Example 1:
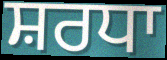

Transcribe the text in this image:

ਸ਼ਰਧਾ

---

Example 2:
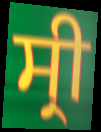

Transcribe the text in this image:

ਸ੍ਰੀ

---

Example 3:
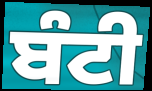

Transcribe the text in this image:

ਬੰਟੀ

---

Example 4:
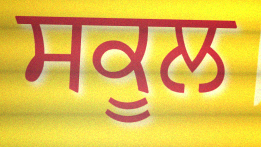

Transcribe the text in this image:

ਸਕੂਲ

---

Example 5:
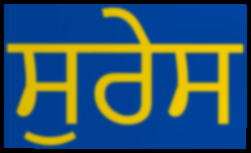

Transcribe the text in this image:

ਸੁਰੇਸ